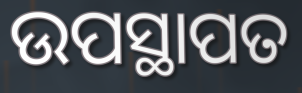
ଉପସ୍ଥାପତ